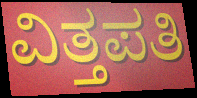
ವಿತ್ತಪತಿ